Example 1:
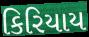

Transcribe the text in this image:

કિરિયાય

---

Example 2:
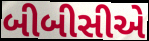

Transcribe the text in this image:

બીબીસીએ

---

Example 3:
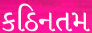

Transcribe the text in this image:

કઠિનતમ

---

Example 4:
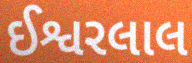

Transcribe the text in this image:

ઈશ્વરલાલ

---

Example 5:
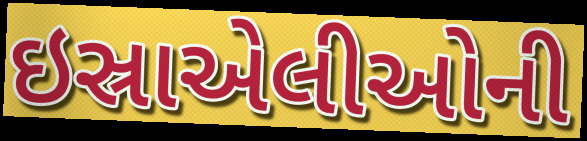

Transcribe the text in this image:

ઇસ્રાએલીઓની